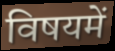
विषयमें